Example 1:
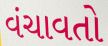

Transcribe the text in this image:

વંચાવતો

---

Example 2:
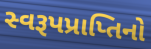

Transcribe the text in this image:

સ્વરૂપપ્રાપ્તિનો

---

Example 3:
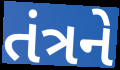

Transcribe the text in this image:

તંત્રને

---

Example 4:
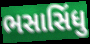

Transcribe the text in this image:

ભસાસિંધુ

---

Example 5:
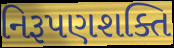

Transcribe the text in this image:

નિરૂપણશક્તિ